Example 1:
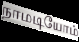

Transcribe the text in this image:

நாமடியோம்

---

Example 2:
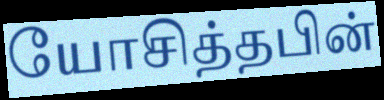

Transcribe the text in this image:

யோசித்தபின்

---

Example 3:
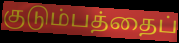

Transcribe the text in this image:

குடும்பத்தைப்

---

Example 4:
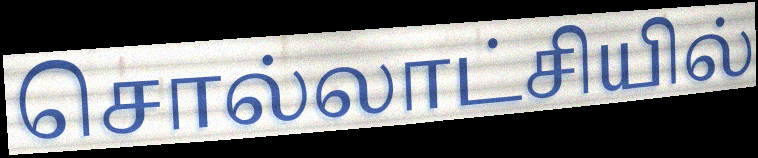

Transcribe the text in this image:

சொல்லாட்சியில்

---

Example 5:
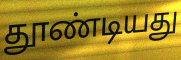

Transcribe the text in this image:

தூண்டியது